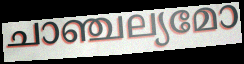
ചാഞ്ചല്യമോ